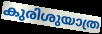
കുരിശുയാത്ര